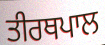
ਤੀਰਥਪਾਲ